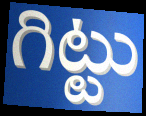
గిట్టు